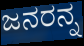
ಜನರನ್ನ